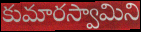
కుమారస్వామిని